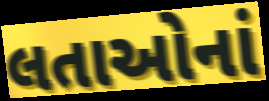
લતાઓનાં